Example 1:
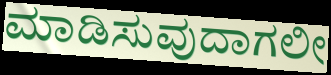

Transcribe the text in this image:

ಮಾಡಿಸುವುದಾಗಲೀ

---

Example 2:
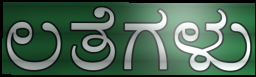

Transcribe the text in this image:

ಲತೆಗಳು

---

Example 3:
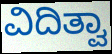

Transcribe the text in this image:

ವಿದಿತ್ವಾ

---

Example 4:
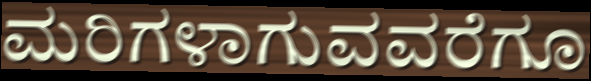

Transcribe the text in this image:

ಮರಿಗಳಾಗುವವರೆಗೂ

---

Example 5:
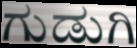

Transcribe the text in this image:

ಗುಡುಗಿ